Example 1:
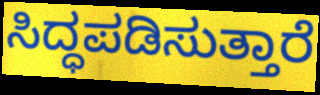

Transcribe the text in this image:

ಸಿದ್ಧಪಡಿಸುತ್ತಾರೆ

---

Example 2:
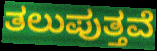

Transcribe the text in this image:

ತಲುಪುತ್ತವೆ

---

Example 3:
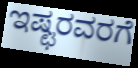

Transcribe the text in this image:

ಇಷ್ಟರವರಗೆ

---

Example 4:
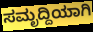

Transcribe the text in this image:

ಸಮೃದ್ದಿಯಾಗಿ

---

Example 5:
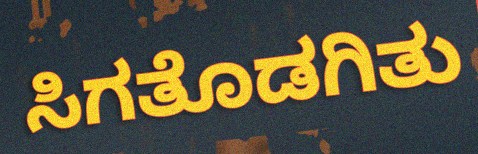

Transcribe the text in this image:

ಸಿಗತೊಡಗಿತು